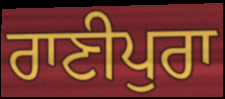
ਰਾਣੀਪੁਰਾ